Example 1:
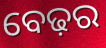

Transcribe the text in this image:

ବେଢ଼ର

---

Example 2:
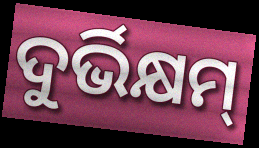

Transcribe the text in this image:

ଦୁର୍ଭିକ୍ଷମ୍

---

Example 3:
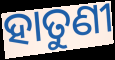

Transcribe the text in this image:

ହାତୁଣୀ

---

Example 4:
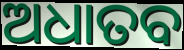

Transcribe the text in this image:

ଅଧାତବ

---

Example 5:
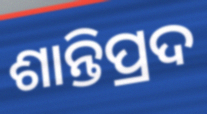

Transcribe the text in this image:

ଶାନ୍ତିପ୍ରଦ